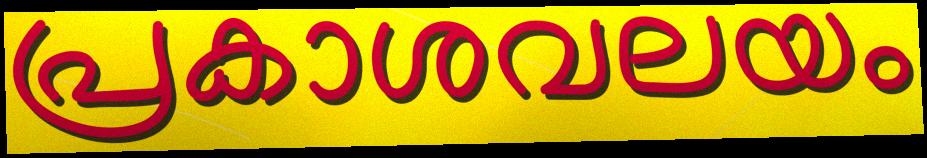
പ്രകാശവലയം